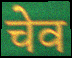
चेव